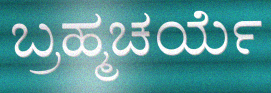
ಬ್ರಹ್ಮಚರ್ಯೆ